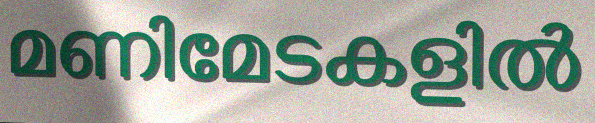
മണിമേടകളിൽ